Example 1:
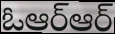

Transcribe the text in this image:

ఓఆర్ఆర్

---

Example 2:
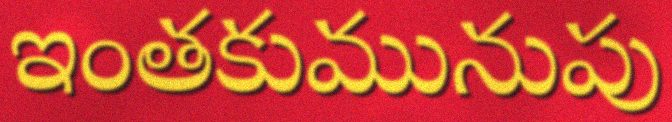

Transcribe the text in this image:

ఇంతకుమునుపు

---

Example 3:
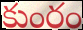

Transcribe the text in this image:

కుంరం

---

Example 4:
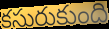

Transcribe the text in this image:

కసురుకుంది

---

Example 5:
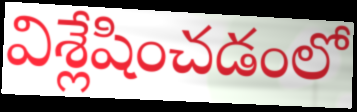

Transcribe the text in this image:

విశ్లేషించడంలో